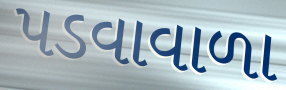
પડવાવાળા